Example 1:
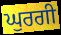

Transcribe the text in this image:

ਘੁਰਗੀ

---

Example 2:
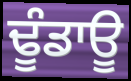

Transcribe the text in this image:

ਢੂੰਡਾਊ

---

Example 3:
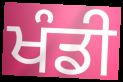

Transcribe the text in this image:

ਖੰਡੀ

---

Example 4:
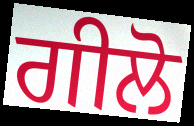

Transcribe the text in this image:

ਗੀਲੋ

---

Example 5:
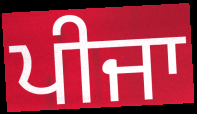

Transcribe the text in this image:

ਪੀਜਾ